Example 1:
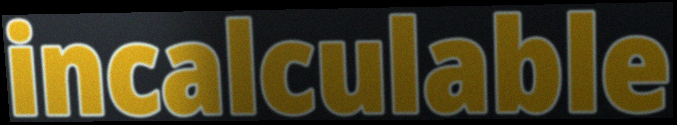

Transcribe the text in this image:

incalculable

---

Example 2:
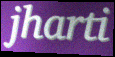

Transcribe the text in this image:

jharti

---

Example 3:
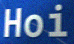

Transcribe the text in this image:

Hoi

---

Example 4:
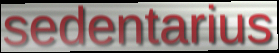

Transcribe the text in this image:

sedentarius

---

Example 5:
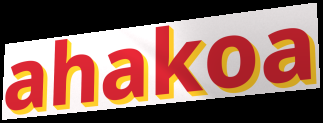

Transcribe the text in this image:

ahakoa